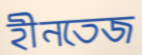
হীনতেজ